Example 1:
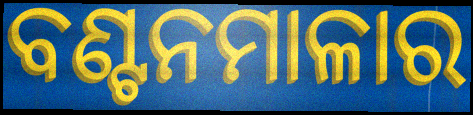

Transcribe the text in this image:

ବଣ୍ଟନମାଳାର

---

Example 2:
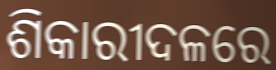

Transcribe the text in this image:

ଶିକାରୀଦଳରେ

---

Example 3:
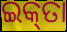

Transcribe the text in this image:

ଇକ୍‌ତା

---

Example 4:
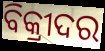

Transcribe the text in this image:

ବିକ୍ରୀଦର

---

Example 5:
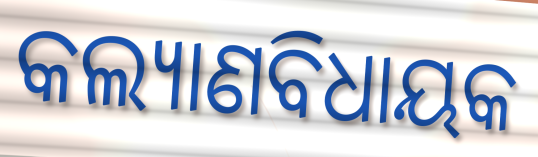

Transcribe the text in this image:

କଲ୍ୟାଣବିଧାୟକ